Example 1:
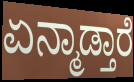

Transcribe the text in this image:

ಏನ್ಮಾಡ್ತಾರೆ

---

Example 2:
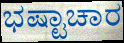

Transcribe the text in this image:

ಭಷ್ಟಾಚಾರ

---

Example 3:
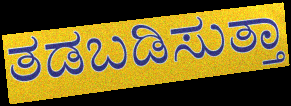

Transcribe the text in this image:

ತಡಬಡಿಸುತ್ತಾ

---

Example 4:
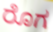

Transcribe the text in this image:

ರೊಗ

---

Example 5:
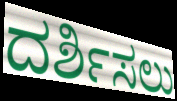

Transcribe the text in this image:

ದರ್ಶಿಸಲು